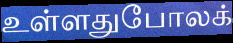
உள்ளதுபோலக்